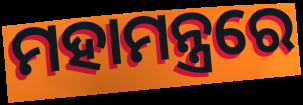
ମହାମନ୍ତ୍ରରେ